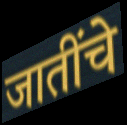
जातींचे